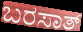
ಬರಸಾತ್